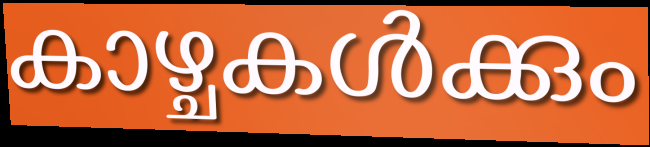
കാഴ്ചകൾക്കും